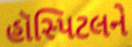
હૉસ્પિટલને